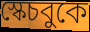
স্কেচবুকে